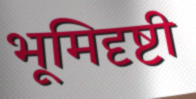
भूमिदृष्टी